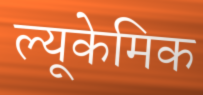
ल्यूकेमिक